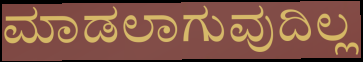
ಮಾಡಲಾಗುವುದಿಲ್ಲ